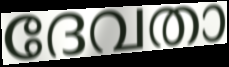
ദേവതാ